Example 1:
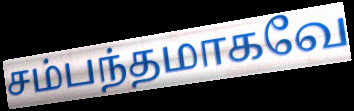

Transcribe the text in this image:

சம்பந்தமாகவே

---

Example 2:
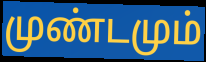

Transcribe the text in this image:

முண்டமும்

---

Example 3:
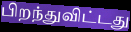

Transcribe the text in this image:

பிறந்துவிட்டது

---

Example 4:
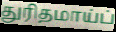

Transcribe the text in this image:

துரிதமாய்ப்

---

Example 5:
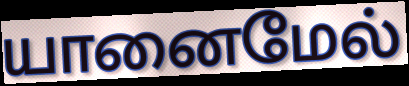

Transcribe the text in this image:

யானைமேல்